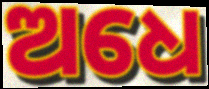
ଅଧେ